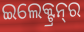
ଇଲେକ୍ଟ୍ରନ୍‌ର